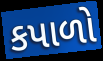
કપાળો